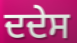
ਦਦੇਸ